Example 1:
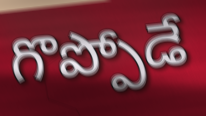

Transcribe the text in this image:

గొప్పోడే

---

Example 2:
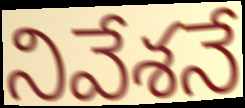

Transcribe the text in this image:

నివేశనే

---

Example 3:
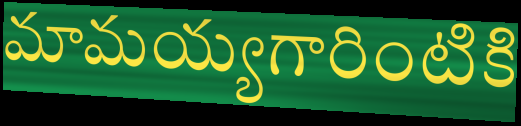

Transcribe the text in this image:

మామయ్యగారింటికి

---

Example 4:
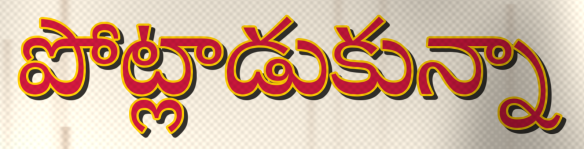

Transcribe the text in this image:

పోట్లాడుకున్నా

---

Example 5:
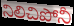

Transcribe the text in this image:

నిలిచిపోనీ